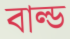
বাল্ড